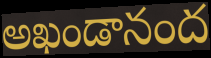
అఖండానంద